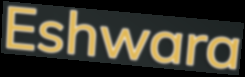
Eshwara